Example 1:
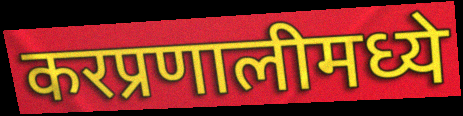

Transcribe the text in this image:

करप्रणालीमध्ये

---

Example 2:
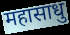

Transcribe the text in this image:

महासाधु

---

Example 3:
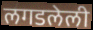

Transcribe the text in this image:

लगडलेली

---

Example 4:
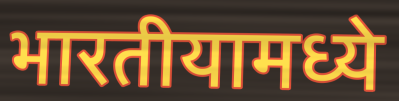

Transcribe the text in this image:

भारतीयामध्ये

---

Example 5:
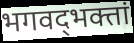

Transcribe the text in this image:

भगवद्भक्तां